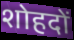
शोहदों